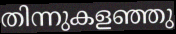
തിന്നുകളഞ്ഞു